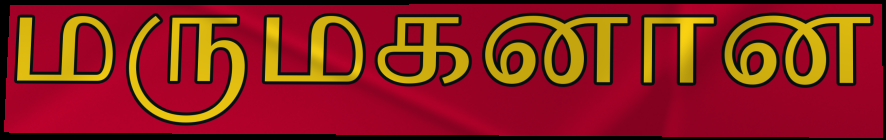
மருமகனான